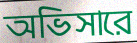
অভিসারে